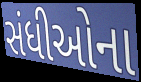
સંધીઓના